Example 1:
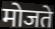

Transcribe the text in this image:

मोजते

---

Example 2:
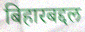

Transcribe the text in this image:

बिहारबद्दल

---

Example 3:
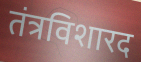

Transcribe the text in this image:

तंत्रविशारद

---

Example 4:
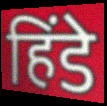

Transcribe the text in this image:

हिंडे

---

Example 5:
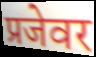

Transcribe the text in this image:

प्रजेवर